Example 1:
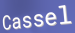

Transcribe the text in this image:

Cassel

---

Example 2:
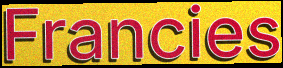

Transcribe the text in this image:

Francies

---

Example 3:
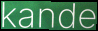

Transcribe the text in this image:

kande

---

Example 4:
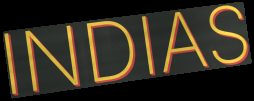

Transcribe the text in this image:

INDIAS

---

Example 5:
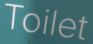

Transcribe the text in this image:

Toilet